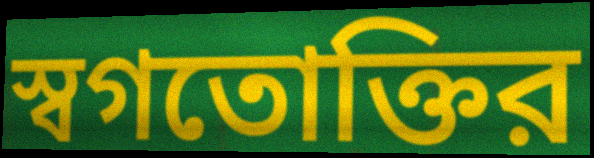
স্বগতোক্তির